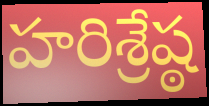
హరిశ్రేష్ఠ